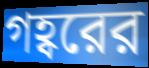
গহ্বরের